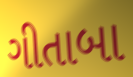
ગીતાબા